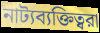
নাট্যব্যক্তিত্বরা